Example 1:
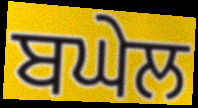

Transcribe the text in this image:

ਬਘੇਲ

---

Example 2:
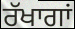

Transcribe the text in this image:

ਰੱਖਾਗਾਂ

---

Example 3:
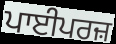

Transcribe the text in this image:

ਪਾਈਪਰਜ਼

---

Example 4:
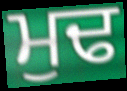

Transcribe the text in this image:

ਮੁਢ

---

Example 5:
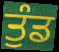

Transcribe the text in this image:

ਤੁੰਡ